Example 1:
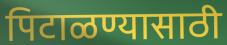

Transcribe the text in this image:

पिटाळण्यासाठी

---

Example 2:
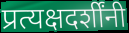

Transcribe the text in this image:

प्रत्यक्षदर्शींनी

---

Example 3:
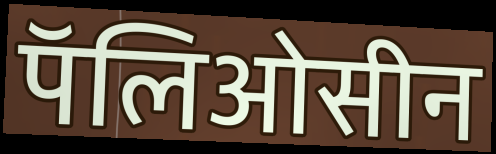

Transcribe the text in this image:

पॅलिओसीन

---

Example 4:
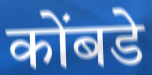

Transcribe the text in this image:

कोंबडे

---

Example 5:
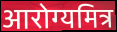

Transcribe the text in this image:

आरोग्यमित्र